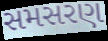
સમસરણ